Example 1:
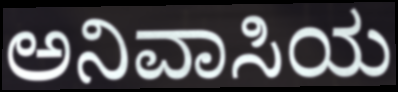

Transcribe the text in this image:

ಅನಿವಾಸಿಯ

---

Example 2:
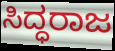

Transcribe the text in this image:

ಸಿದ್ಧರಾಜ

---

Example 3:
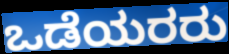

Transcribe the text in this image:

ಒಡೆಯರರು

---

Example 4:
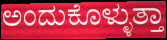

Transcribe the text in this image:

ಅಂದುಕೊಳ್ಳುತ್ತಾ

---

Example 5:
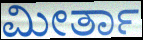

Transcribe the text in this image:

ಮೀರ್ತಾ